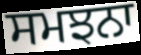
ਸਮਝਨਾ